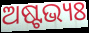
ଅଷ୍ଟଭ୍ୟଃ